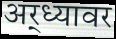
अर्ध्यावर